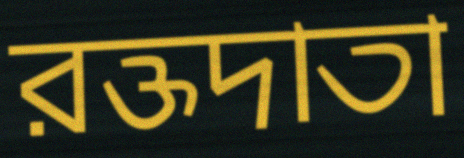
রক্তদাতা